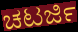
ಚಟರ್ಜಿ